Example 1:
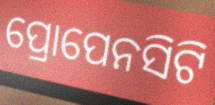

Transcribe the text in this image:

ପ୍ରୋପେନସିଟି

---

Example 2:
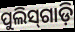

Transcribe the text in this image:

ପୁଲିସ୍‌ଗାଡ଼ି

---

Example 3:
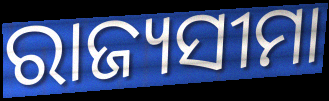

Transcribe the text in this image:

ରାଜ୍ୟସୀମା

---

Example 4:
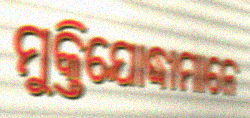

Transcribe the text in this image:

ମୁକ୍ତିଯୋଦ୍ଧାମାନେ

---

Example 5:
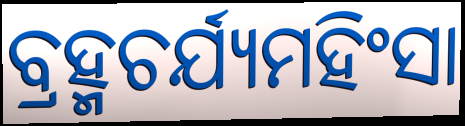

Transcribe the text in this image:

ବ୍ରହ୍ମଚର୍ଯ୍ୟମହିଂସା